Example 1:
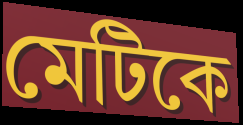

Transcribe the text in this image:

মেটিকে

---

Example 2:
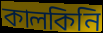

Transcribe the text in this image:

কালকিনি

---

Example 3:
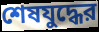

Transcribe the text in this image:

শেষযুদ্ধের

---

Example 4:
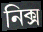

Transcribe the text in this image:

নিক্স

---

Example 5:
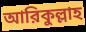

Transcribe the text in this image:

আরিকুল্লাহ